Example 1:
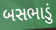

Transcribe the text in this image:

બસભાડું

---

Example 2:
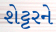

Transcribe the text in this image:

શેટ્ટરને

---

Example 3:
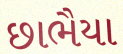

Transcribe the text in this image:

છાભૈયા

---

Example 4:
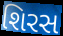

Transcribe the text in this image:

શિરસ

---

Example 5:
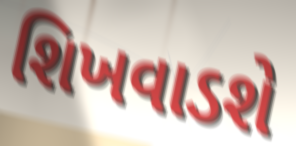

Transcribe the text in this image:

શિખવાડશે